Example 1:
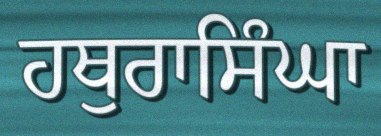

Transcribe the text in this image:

ਹਥੁਰਾਸਿੰਘਾ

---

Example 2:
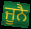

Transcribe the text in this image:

ਜੂਨੈ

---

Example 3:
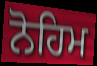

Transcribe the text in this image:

ਨੋਹਿਮ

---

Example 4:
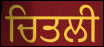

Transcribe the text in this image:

ਚਿਤਲੀ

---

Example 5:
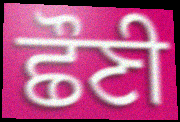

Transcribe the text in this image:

ਛੌਣੀ